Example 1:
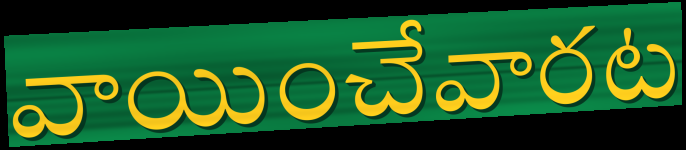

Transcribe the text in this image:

వాయించేవారట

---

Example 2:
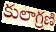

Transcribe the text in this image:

కులాగ్రణి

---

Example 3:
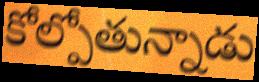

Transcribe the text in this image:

కోల్పోతున్నాడు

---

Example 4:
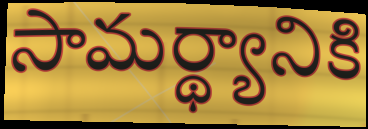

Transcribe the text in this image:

సామర్థ్యానికి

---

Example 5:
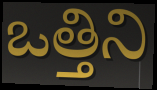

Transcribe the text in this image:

ఒత్తిని